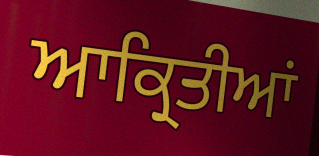
ਆਕ੍ਰਿਤੀਆਂ